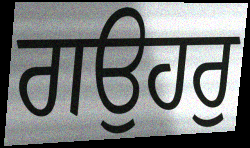
ਗਉਹਰੁ